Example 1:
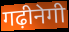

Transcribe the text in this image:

गढ़ीनेगी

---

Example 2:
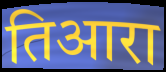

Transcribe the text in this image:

तिआरा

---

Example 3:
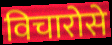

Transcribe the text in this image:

विचारोसे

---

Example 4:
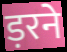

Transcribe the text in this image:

ड़रने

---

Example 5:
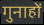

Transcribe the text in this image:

गुनाहों